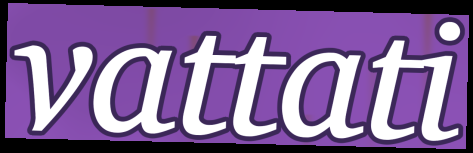
vattati